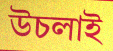
উচলাই